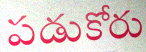
పడుకోరు